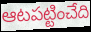
ఆటపట్టించేది